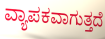
ವ್ಯಾಪಕವಾಗುತ್ತದೆ